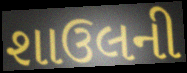
શાઉલની